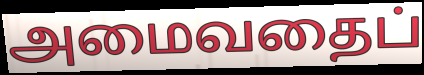
அமைவதைப்